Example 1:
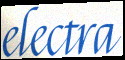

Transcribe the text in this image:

electra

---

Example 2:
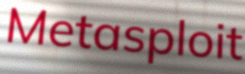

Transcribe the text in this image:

Metasploit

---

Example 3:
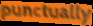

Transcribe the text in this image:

punctually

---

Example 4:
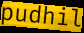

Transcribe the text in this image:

pudhil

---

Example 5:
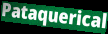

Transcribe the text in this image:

Pataquerical